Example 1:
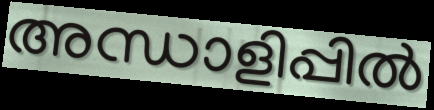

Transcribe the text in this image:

അന്ധാളിപ്പിൽ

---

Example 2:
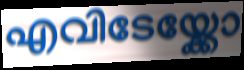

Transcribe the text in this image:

എവിടേയ്ക്കോ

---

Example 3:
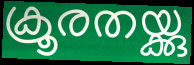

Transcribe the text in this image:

ക്രൂരതയ്ക്കു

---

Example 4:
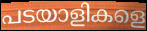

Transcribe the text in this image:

പടയാളികളെ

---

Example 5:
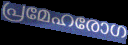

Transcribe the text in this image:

പ്രമേഹരോഗ